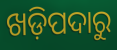
ଖଡ଼ିପଦାରୁ